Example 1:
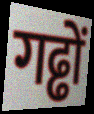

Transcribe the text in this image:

गढ्ढों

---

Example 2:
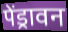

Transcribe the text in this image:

पेंड्रावन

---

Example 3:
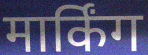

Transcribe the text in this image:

मार्किंग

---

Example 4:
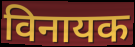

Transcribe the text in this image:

विनायक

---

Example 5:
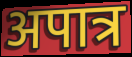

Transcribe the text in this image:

अपात्र